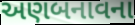
અણબનાવના